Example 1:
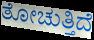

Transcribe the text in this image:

ತೋಚುತ್ತಿದೆ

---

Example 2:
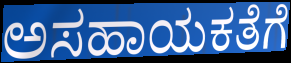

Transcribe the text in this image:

ಅಸಹಾಯಕತೆಗೆ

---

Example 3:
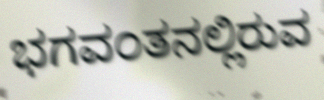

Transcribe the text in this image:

ಭಗವಂತನಲ್ಲಿರುವ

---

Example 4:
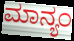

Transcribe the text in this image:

ಮಾನ್ಯಂ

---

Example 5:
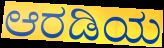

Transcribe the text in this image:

ಆರಡಿಯ